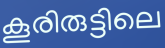
കൂരിരുട്ടിലെ